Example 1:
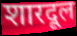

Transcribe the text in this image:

शारदूल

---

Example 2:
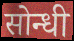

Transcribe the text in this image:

सोन्धी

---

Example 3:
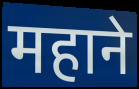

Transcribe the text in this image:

महाने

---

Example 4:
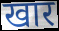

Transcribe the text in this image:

खार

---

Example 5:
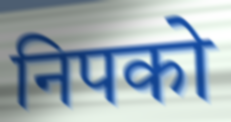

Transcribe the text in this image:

निपको